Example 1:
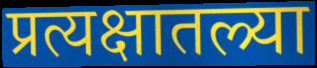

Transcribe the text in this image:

प्रत्यक्षातल्या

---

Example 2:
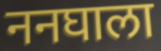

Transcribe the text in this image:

ननघाला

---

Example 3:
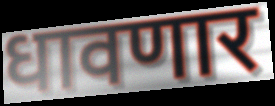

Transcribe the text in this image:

धावणार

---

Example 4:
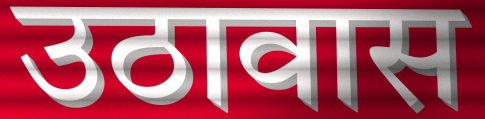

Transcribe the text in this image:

उठावास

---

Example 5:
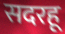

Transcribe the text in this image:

सदरहू